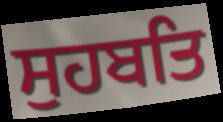
ਸੁਹਬਤਿ